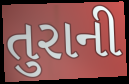
તુરાની